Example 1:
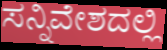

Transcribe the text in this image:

ಸನ್ನಿವೇಶದಲ್ಲಿ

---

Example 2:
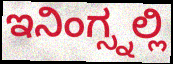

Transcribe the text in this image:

ಇನಿಂಗ್ಸ್ನಲ್ಲಿ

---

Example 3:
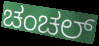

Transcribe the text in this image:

ಚಂಚಲ್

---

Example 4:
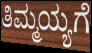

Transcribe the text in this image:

ತಿಮ್ಮಯ್ಯಗೆ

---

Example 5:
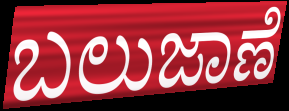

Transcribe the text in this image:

ಬಲುಜಾಣೆ